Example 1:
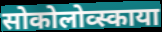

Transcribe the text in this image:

सोकोलोव्स्काया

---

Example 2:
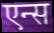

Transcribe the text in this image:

एन्स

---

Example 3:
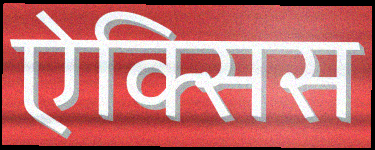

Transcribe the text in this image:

ऐक्सिस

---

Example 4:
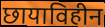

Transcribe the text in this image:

छायाविहीन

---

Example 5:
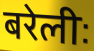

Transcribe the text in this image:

बरेलीः